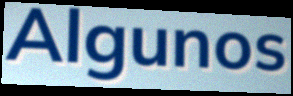
Algunos